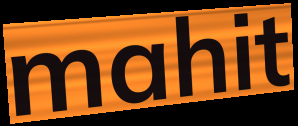
mahit